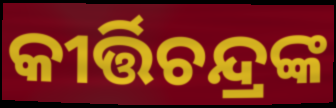
କୀର୍ତ୍ତିଚନ୍ଦ୍ରଙ୍କ